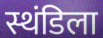
स्थंडिला